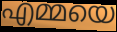
എമ്മയെ